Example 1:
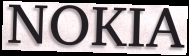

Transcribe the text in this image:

NOKIA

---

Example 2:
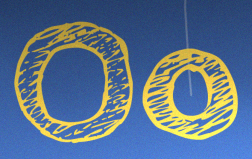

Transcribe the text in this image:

Oo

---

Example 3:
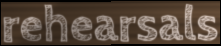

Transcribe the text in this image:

rehearsals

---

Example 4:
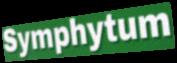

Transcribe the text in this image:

Symphytum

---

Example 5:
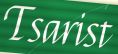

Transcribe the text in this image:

Tsarist